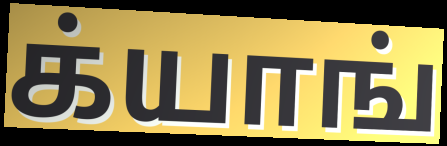
க்யாங்